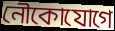
নৌকোযোগে